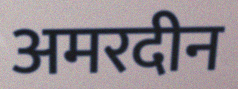
अमरदीन